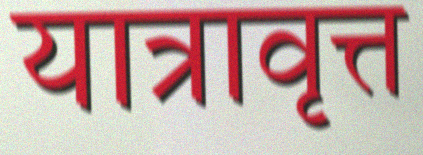
यात्रावृत्त